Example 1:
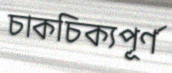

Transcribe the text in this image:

চাকচিক্যপূর্ণ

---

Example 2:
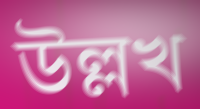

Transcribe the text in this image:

উল্লখ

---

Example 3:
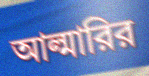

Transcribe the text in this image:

আল্মারির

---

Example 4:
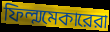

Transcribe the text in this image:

ফিল্মমেকারেরা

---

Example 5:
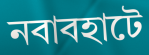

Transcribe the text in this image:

নবাবহাটে